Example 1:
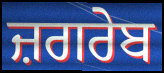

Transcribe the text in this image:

ਜ਼ਗਰੇਬ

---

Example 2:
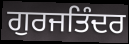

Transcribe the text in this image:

ਗੁਰਜਤਿੰਦਰ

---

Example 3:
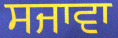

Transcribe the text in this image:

ਸਜਾਵਾ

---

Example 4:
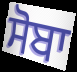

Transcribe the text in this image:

ਸੋਬਾ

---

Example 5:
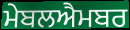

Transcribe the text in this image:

ਮੇਬਲਐਮਬਰ